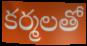
కర్మలతో